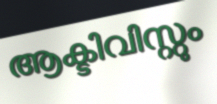
ആക്ടിവിസ്റ്റും